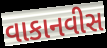
વાકાનવીસ